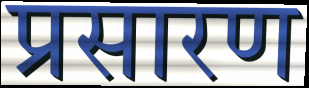
प्रसारण